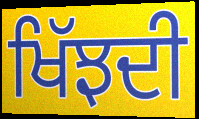
ਖਿੱਝਦੀ